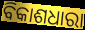
ବିକାଶଧାରା